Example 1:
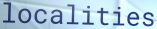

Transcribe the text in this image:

localities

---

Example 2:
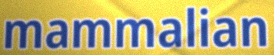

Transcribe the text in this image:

mammalian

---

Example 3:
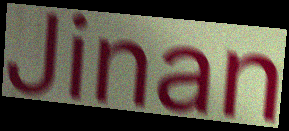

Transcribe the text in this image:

Jinan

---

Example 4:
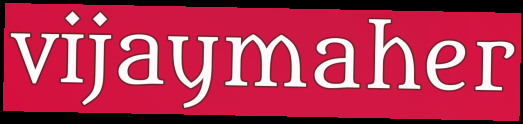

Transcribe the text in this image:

vijaymaher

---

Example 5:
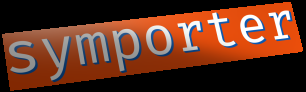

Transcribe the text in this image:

symporter